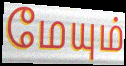
மேயும்